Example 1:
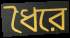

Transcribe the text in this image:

ধৈরে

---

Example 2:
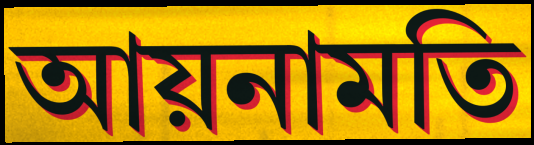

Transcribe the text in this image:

আয়নামতি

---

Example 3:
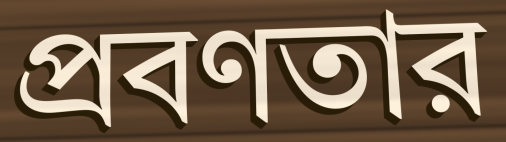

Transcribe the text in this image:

প্রবণতার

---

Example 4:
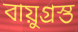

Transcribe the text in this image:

বায়ুগ্রস্ত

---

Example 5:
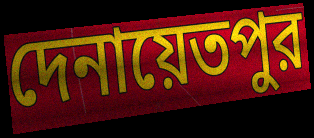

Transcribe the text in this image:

দেনায়েতপুর